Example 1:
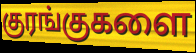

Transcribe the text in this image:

குரங்குகளை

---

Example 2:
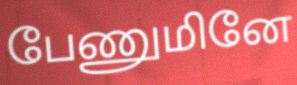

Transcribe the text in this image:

பேணுமினே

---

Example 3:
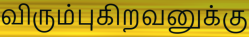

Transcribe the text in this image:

விரும்புகிறவனுக்கு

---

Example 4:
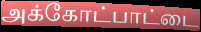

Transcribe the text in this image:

அக்கோட்பாட்டை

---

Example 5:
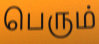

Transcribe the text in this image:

பெரும்